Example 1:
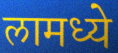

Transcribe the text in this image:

लामध्ये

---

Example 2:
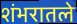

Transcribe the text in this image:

शंभरातले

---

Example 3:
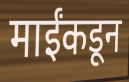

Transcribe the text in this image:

माईंकडून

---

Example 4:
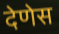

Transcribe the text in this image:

देणेस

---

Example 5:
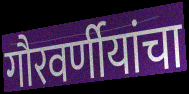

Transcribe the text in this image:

गौरवर्णीयांचा